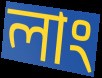
লাং